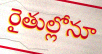
రైతుల్లోనూ